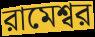
রামেশ্বর